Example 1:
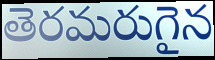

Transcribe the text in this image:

తెరమరుగైన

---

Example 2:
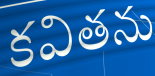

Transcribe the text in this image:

కవితను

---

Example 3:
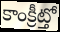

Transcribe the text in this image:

కాంక్రీట్తో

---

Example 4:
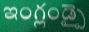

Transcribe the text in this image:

ఇంగ్లండ్పై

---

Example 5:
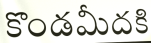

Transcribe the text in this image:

కొండమీదకి